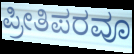
ಪ್ರೀತಿಪರವೂ